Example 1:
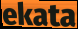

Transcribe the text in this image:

ekata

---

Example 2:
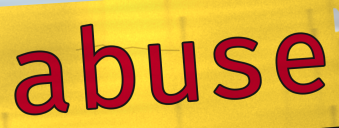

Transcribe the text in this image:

abuse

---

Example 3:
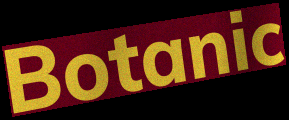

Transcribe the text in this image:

Botanic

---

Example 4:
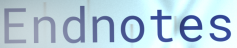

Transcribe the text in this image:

Endnotes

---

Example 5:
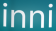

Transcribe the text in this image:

inni